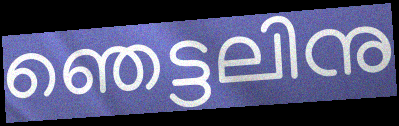
ഞെട്ടലിനു